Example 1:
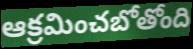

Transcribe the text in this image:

ఆక్రమించబోతోంది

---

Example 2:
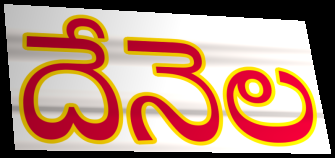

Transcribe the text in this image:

దేనెల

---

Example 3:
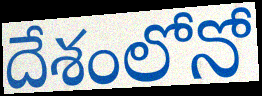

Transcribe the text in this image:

దేశంలోనో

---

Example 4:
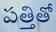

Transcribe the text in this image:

పత్తితో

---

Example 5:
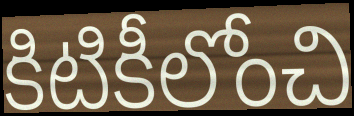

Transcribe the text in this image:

కిటికీలోంచి